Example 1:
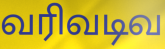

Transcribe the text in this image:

வரிவடிவ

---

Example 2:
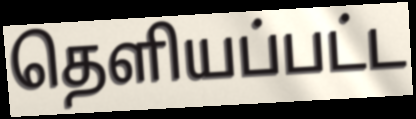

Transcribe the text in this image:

தெளியப்பட்ட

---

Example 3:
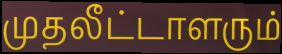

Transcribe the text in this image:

முதலீட்டாளரும்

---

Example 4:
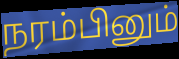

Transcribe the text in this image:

நரம்பினும்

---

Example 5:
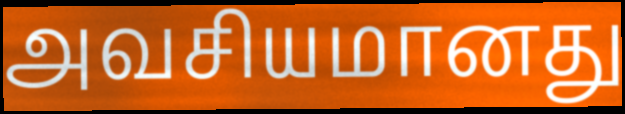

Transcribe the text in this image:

அவசியமானது